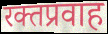
रक्तप्रवाह